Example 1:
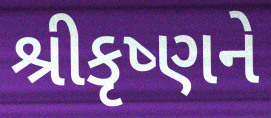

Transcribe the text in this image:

શ્રીકૃષ્ણને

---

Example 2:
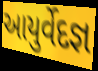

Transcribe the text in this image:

આયુર્વેદજ્ઞ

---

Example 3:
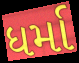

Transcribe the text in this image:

ધર્મા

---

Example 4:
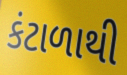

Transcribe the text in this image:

કંટાળાથી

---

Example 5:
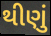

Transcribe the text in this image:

થીણું